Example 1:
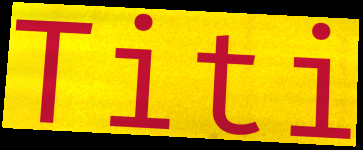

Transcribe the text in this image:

Titi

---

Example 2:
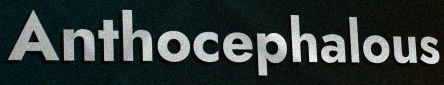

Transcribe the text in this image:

Anthocephalous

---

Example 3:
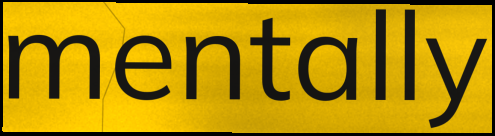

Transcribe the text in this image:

mentally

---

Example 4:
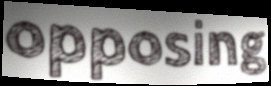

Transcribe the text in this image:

opposing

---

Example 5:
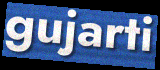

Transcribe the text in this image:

gujarti